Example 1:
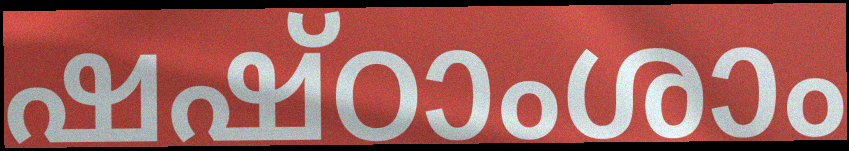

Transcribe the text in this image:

ഷഷ്ഠാംശാം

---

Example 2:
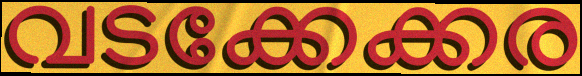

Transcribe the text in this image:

വടക്കേക്കര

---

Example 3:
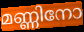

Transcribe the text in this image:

മണ്ണിനോ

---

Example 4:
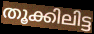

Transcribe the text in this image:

തൂക്കിലിട്ട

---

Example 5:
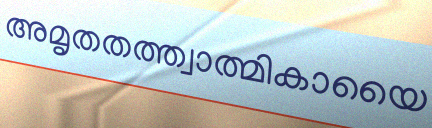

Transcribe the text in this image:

അമൃതതത്ത്വാത്മികായൈ